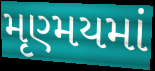
મૃણ્મયમાં